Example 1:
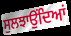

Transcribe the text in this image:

ਸੁਲਝਾਉਂਦਿਆਂ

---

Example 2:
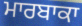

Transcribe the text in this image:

ਮਾਰਬਾਕਾ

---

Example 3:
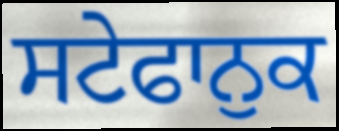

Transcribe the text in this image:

ਸਟੇਫਾਨੁਕ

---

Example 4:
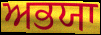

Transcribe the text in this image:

ਅਭਯਾ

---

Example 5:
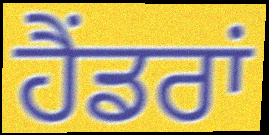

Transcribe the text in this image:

ਹੈਂਡਰਾਂ